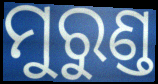
ମୁରୁଣ୍ଡ